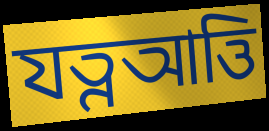
যত্নআত্তি